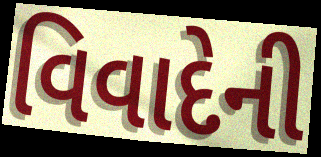
વિવાદેની